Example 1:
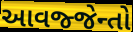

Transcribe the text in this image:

આવજ્જેન્તો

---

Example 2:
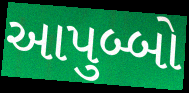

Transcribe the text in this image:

આપુબ્બો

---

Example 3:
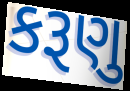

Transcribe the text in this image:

કરૂણુ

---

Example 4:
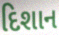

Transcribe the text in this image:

દિશાન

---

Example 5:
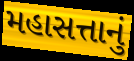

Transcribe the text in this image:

મહાસત્તાનું